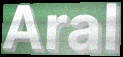
Aral